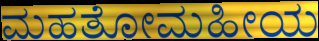
ಮಹತೋಮಹೀಯ